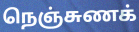
நெஞ்சுணக்